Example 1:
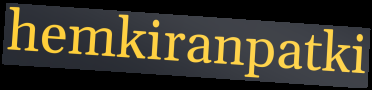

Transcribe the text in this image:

hemkiranpatki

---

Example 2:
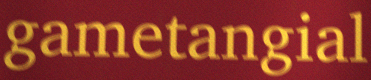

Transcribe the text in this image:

gametangial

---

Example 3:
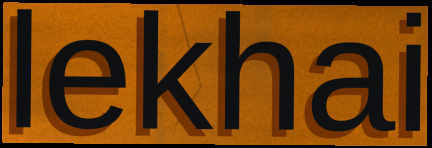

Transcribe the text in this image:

lekhai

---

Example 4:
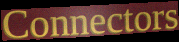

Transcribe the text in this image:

Connectors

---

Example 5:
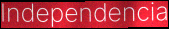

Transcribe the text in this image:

Independencia